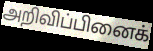
அறிவிப்பினைக்